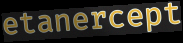
etanercept